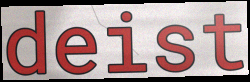
deist